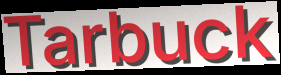
Tarbuck